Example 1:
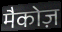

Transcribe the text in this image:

मैकोज़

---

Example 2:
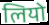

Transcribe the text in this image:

लियो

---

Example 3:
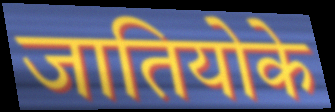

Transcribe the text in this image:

जातियोके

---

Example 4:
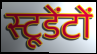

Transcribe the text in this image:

स्टूडेंटों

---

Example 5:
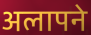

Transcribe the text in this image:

अलापने